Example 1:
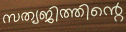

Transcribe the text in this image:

സത്യജിത്തിന്റെ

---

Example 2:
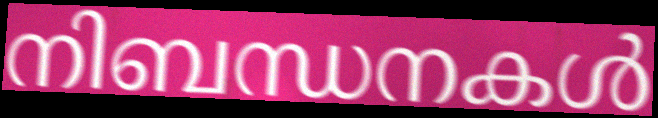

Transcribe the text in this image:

നിബന്ധനകൾ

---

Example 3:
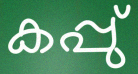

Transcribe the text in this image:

കപ്പു്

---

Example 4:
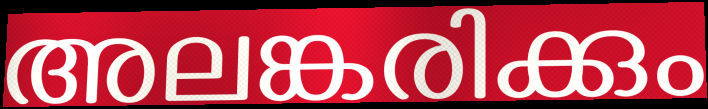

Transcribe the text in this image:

അലങ്കരിക്കും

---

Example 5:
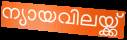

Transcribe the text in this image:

ന്യായവിലയ്ക്ക്